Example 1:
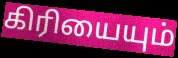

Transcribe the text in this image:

கிரியையும்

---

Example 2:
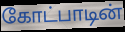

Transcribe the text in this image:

கோட்பாடின்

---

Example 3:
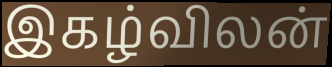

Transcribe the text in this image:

இகழ்விலன்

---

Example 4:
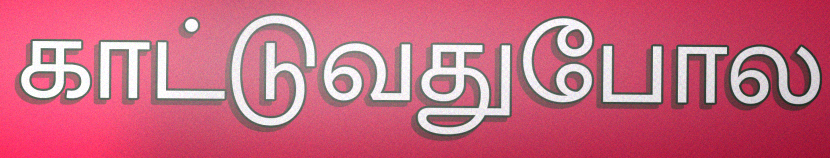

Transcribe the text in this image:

காட்டுவதுபோல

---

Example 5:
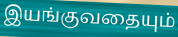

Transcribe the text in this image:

இயங்குவதையும்